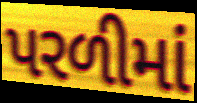
પરળીમાં